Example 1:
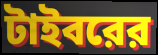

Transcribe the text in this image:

টাইবরের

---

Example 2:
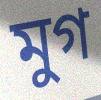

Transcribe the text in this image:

মুগ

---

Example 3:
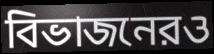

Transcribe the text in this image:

বিভাজনেরও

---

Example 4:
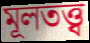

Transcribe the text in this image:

মূলতত্ত্ব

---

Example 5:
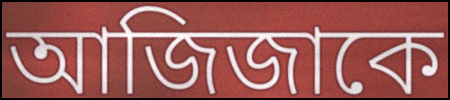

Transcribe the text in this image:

আজিজাকে